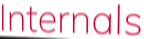
Internals